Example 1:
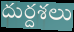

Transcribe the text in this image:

దుర్దశలు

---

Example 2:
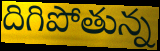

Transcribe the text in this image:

దిగిపోతున్న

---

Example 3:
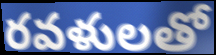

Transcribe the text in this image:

రవళులతో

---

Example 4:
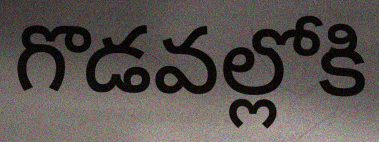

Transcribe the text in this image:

గొడవల్లోకి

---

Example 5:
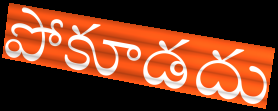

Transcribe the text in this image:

పోకూడదు